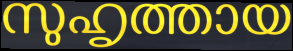
സുഹൃത്തായ